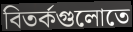
বিতর্কগুলোতে